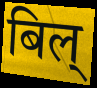
बिल्